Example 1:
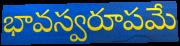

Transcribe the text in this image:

భావస్వరూపమే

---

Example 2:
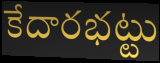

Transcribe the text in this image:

కేదారభట్టు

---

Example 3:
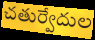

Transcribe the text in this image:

చతుర్వేదుల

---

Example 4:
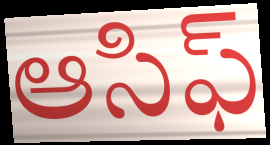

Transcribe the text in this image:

ఆసిఫ్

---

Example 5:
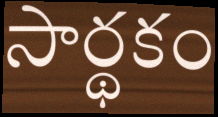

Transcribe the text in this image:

సార్థకం